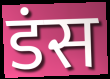
डंस